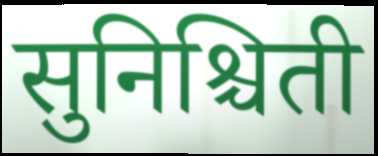
सुनिश्चिती